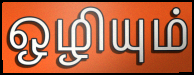
ஒழியும்